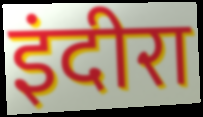
इंदीरा